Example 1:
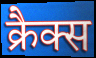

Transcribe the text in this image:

क्रैक्स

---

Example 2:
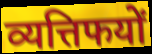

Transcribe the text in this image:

व्यत्तिफयों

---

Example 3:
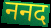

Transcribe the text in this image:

ननद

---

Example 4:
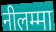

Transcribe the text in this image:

नीलम्मा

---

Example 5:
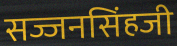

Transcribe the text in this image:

सज्जनसिंहजी